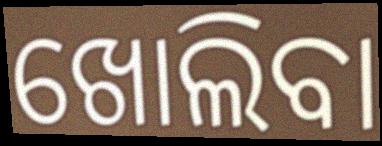
ଖୋଲିବା